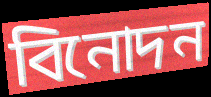
বিনোদন